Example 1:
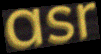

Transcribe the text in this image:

asr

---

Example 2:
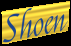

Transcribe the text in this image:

Shoen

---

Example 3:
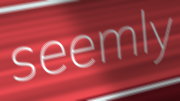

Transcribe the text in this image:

seemly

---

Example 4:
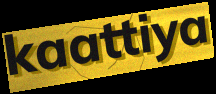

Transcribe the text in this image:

kaattiya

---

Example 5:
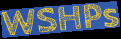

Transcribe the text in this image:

WSHPs